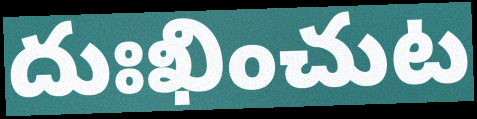
దుఃఖించుట